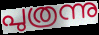
പുത്രന്നു